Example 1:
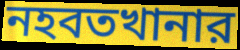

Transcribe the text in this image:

নহবতখানার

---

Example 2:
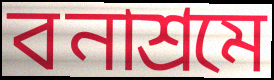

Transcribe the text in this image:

বনাশ্রমে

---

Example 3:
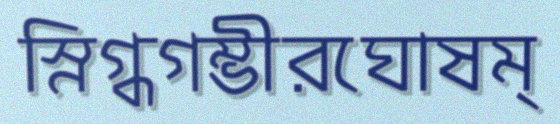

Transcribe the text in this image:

স্নিগ্ধগম্ভীরঘোষম্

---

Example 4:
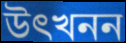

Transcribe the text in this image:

উৎখনন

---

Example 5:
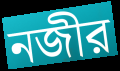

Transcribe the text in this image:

নজীর